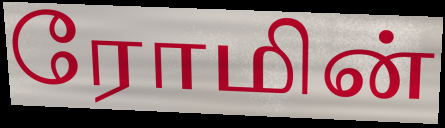
ரோமின்